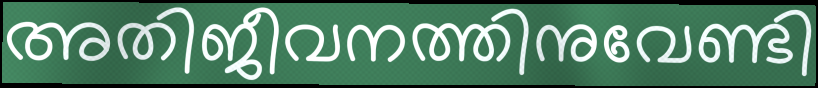
അതിജീവനത്തിനുവേണ്ടി